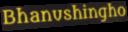
Bhanushingho